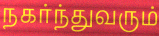
நகர்ந்துவரும்